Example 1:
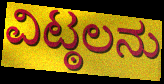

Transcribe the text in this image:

ವಿಟ್ಠಲನು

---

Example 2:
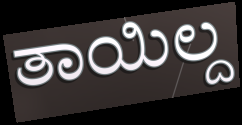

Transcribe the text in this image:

ತಾಯಿಲ್ದ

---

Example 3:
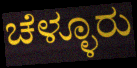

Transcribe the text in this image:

ಚೆಳ್ಳೂರು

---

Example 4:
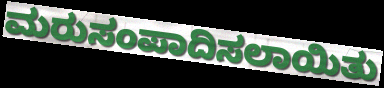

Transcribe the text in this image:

ಮರುಸಂಪಾದಿಸಲಾಯಿತು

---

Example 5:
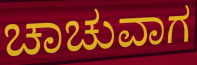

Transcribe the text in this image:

ಚಾಚುವಾಗ